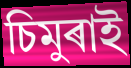
চিমুৰাই